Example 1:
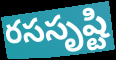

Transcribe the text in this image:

రససృష్టి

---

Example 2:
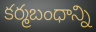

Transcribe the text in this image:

కర్మబంధాన్ని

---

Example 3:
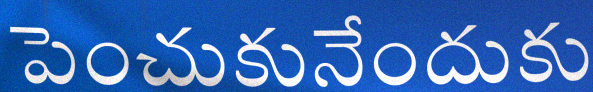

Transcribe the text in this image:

పెంచుకునేందుకు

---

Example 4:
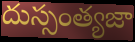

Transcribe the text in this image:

దుస్సంత్యజా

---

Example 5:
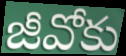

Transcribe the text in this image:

జీవోకు